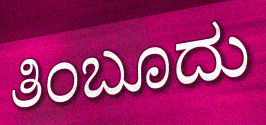
ತಿಂಬೂದು